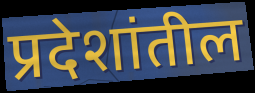
प्रदेशांतील